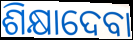
ଶିକ୍ଷାଦେବା